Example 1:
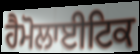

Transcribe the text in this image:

ਹੈਮੋਲਾਈਟਿਕ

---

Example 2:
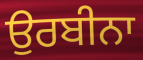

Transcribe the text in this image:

ਉਰਬੀਨਾ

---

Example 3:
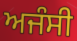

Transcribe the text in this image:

ਅਜੰਸੀ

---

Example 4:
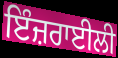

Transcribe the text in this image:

ਇੰਜ਼ਰਾਈਲੀ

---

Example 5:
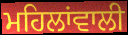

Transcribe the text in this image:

ਮਹਿਲਾਂਵਾਲੀ